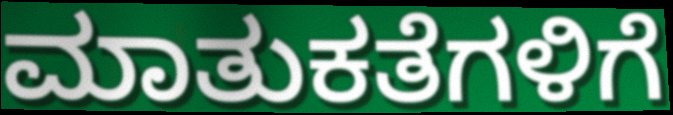
ಮಾತುಕತೆಗಳಿಗೆ